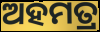
ଅହମତ୍ର